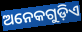
ଅନେକଗୁଡ଼ିଏ